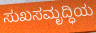
ಸುಖಸಮೃದ್ಧಿಯ